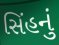
સિંહનું